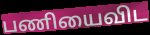
பணியைவிட